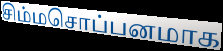
சிம்மசொப்பனமாக